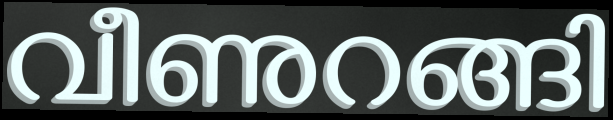
വീണുറങ്ങി